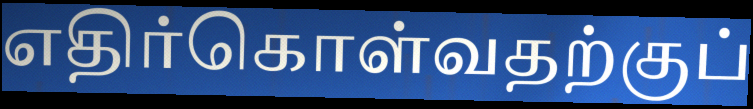
எதிர்கொள்வதற்குப்